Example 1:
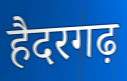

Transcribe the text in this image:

हैदरगढ़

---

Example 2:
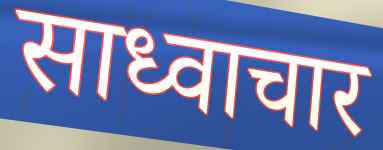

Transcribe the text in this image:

साध्वाचार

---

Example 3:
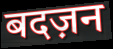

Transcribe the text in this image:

बदज़न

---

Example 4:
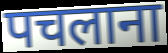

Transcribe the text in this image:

पचलाना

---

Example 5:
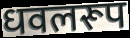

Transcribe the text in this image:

धवलरूप